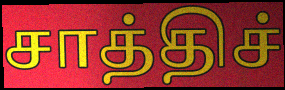
சாத்திச்